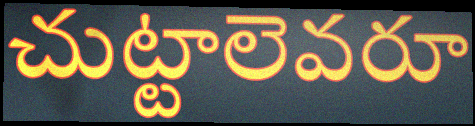
చుట్టాలెవరూ